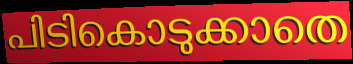
പിടികൊടുക്കാതെ